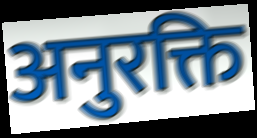
अनुरक्ति